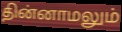
தின்னாமலும்